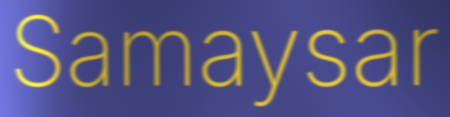
Samaysar